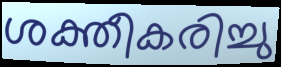
ശക്തീകരിച്ചു